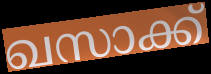
ഖസാക്ക്